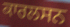
ਕਾਰਲਸਨ